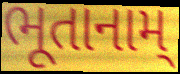
ભૂતાનામ્